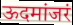
ऊदमांजरं